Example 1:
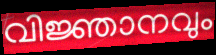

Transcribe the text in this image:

വിജ്ഞാനവും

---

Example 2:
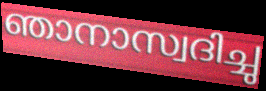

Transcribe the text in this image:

ഞാനാസ്വദിച്ചു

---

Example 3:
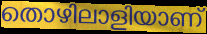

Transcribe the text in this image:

തൊഴിലാളിയാണ്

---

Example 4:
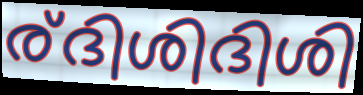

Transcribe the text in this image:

ര്ദിശിദിശി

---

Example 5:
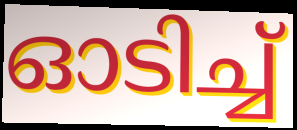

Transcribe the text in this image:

ഓടിച്ച്